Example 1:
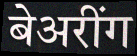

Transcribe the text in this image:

बेअरींग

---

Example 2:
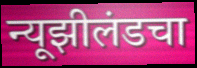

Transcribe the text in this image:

न्यूझीलंडचा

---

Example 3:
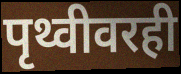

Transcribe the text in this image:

पृथ्वीवरही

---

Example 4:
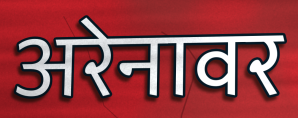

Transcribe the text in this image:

अरेनावर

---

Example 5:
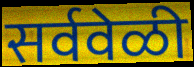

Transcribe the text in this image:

सर्ववेळी